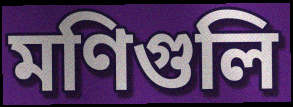
মণিগুলি